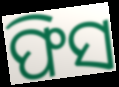
ଫିସ